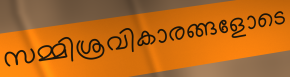
സമ്മിശ്രവികാരങ്ങളോടെ